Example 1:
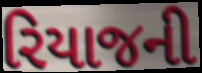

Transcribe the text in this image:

રિયાજની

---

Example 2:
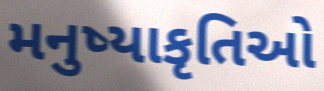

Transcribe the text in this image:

મનુષ્યાકૃતિઓ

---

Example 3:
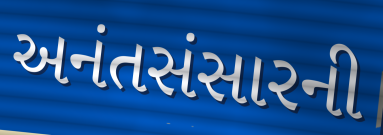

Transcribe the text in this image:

અનંતસંસારની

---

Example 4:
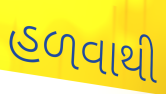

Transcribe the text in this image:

હળવાથી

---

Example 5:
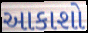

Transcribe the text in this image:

આકાશો